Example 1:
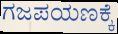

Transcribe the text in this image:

ಗಜಪಯಣಕ್ಕೆ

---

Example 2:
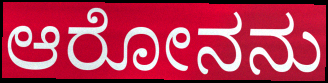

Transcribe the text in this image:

ಆರೋನನು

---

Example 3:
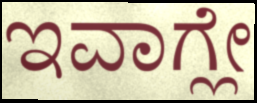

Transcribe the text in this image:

ಇವಾಗ್ಲೇ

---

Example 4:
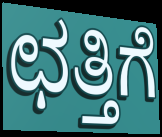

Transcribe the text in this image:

ಛತ್ತಿಗೆ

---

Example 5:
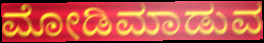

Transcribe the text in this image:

ಮೋಡಿಮಾಡುವ